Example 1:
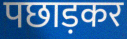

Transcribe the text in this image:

पछाड़कर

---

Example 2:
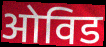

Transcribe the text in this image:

ओविड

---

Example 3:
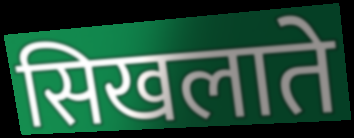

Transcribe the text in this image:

सिखलाते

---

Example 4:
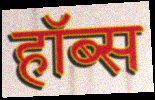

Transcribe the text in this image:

हॉब्स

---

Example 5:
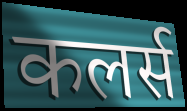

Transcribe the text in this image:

कलर्स